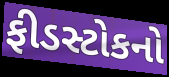
ફીડસ્ટોકનો